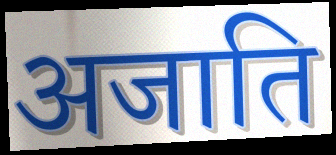
अजाति